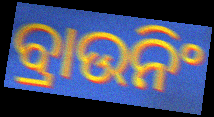
ବ୍ରାଉନିଂ